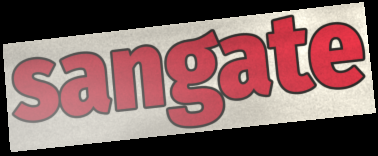
sangate